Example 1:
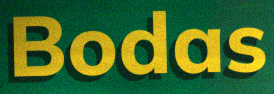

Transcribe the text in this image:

Bodas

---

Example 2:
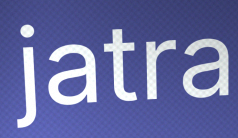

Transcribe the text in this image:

jatra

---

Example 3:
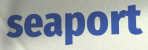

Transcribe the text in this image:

seaport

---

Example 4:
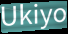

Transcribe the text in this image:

Ukiyo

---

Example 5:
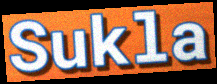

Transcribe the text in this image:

Sukla